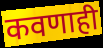
कवणाही